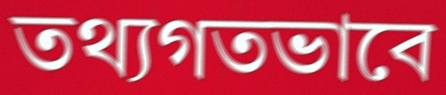
তথ্যগতভাবে